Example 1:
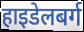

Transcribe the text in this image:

हाइडेलबर्ग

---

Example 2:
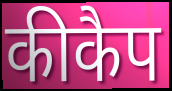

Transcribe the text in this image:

कीकैप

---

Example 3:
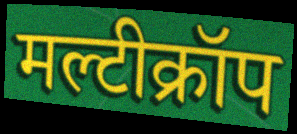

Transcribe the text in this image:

मल्टीक्रॉप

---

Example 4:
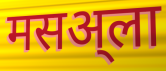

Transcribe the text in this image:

मसअ्ला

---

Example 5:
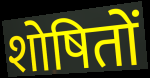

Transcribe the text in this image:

शोषितों